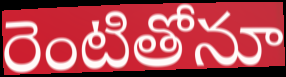
రెంటితోనూ